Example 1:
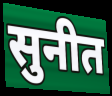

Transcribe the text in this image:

सुनीत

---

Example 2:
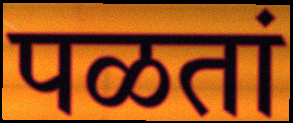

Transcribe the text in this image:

पळतां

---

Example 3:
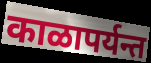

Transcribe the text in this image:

काळापर्यन्त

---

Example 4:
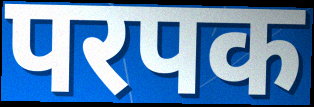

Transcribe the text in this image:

परपक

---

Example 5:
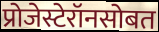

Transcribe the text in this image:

प्रोजेस्टेरॉनसोबत